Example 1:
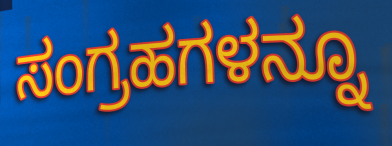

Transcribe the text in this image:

ಸಂಗ್ರಹಗಳನ್ನೂ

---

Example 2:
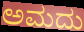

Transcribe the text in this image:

ಅಮದು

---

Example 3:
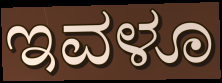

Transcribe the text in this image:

ಇವಳೂ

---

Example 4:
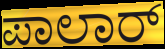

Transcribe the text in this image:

ಪಾಲಾರ್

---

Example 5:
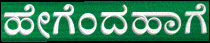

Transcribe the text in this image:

ಹೇಗೆಂದಹಾಗೆ